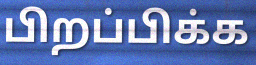
பிறப்பிக்க